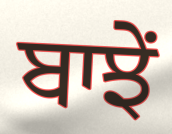
ਬਾਝੇਂ